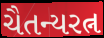
ચૈતન્યરત્ન